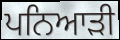
ਪਨਿਆੜੀ